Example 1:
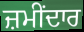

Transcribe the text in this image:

ਜ਼ਮੀਂਦਾਰ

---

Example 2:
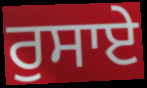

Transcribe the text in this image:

ਰੁਸਾਏ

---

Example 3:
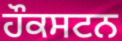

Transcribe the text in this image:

ਹੌਕਸਟਨ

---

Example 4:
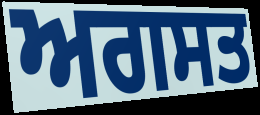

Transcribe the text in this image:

ਅਗਸਤ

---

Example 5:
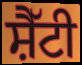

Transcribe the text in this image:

ਸ਼ੈੱਟੀ